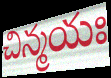
చిన్మయః